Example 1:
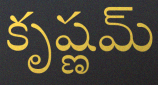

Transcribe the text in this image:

కృష్ణమ్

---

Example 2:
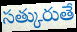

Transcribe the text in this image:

సత్కురుతే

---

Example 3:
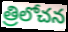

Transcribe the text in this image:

త్రిలోచన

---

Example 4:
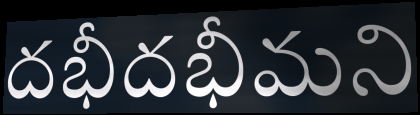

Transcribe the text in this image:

దభీదభీమని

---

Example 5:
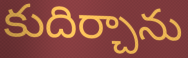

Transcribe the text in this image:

కుదిర్చాను